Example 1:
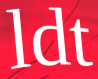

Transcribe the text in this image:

ldt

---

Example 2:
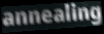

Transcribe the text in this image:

annealing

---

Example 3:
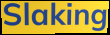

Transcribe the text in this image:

Slaking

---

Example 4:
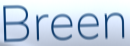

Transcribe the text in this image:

Breen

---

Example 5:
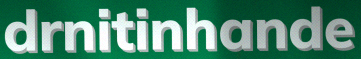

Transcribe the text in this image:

drnitinhande